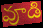
వూడి